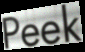
Peek